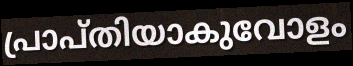
പ്രാപ്തിയാകുവോളം